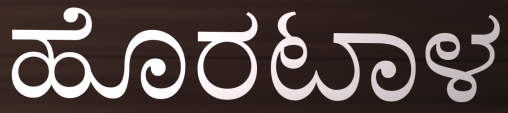
ಹೊರಟಾಳ